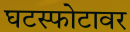
घटस्फोटावर